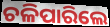
ଚଳିପାରିଲେ